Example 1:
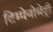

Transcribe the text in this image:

टिम्पेनोमेट्री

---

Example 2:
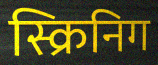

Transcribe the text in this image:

स्क्रिनिग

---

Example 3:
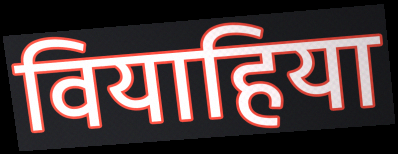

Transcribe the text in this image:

वियाहिया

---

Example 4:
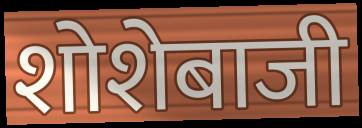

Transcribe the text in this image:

शोशेबाजी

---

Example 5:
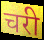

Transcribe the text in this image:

चरी